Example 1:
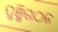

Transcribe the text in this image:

ପୁଞ୍ଜିଗଠନ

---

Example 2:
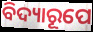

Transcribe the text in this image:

ବିଦ୍ୟାରୂପେ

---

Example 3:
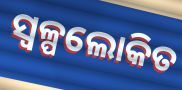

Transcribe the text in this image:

ସ୍ୱଳ୍ପଲୋକିତ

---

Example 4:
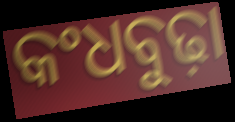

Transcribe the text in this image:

କଂଧବୁଢ଼ା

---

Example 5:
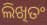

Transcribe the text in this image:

ଲିଖିତଂ